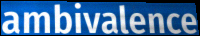
ambivalence